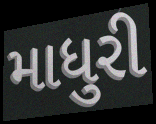
માધુરી